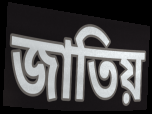
জাতিয়